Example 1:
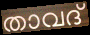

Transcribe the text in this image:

താവദ്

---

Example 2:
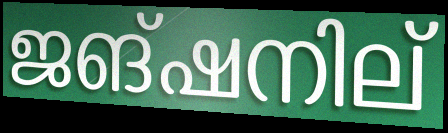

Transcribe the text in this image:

ജങ്ഷനില്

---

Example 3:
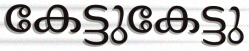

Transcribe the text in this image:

കേട്ടുകേട്ടു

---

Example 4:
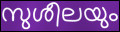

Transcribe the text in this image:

സുശീലയും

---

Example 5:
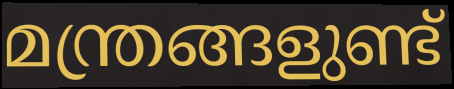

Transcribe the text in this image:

മന്ത്രങ്ങളുണ്ട്